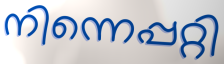
നിന്നെപ്പറ്റി